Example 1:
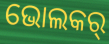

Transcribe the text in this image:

ଭୋଲକର୍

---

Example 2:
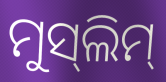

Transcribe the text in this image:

ମୁସ୍‌ଲିମ୍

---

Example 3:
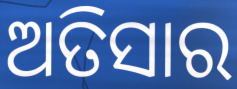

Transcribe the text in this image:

ଅତିସାର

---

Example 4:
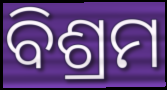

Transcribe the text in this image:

ବିଶ୍ରମ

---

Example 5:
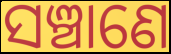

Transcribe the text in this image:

ସଞ୍ଚାଣେ